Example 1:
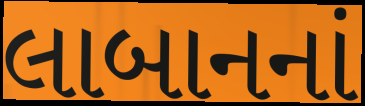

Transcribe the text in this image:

લાબાનનાં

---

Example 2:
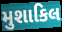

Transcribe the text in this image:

મુશાકિલ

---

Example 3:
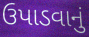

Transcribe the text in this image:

ઉપાડવાનું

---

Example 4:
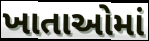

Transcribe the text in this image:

ખાતાઓમાં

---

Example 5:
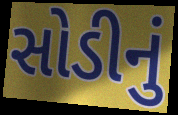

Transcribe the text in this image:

સોડીનું